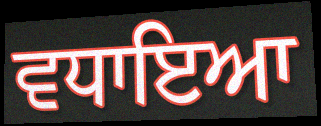
ਵਧਾਇਆ